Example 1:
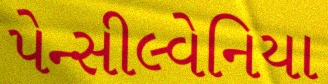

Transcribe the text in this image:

પેન્સીલ્વેનિયા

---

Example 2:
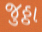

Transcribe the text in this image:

જુઠ્ઠા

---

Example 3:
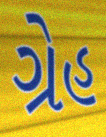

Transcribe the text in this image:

ગ્રેહ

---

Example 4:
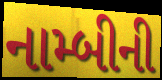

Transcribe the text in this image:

નામ્બીની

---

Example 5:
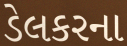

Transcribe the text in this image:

ડેલકરના